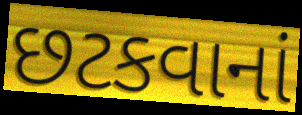
છટકવાનાં